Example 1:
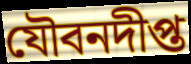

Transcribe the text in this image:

যৌবনদীপ্ত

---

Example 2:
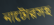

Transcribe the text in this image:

নাটোরসহ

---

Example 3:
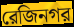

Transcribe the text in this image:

রেজিনগর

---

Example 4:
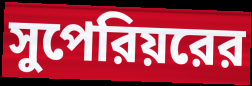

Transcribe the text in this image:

সুপেরিয়রের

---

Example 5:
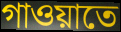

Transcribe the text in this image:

গাওয়াতে